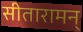
सीतारामन्